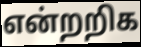
என்றறிக